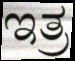
ಇತ್ರ